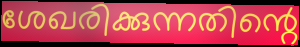
ശേഖരിക്കുന്നതിന്റെ